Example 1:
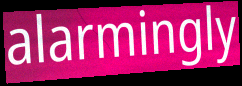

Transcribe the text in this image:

alarmingly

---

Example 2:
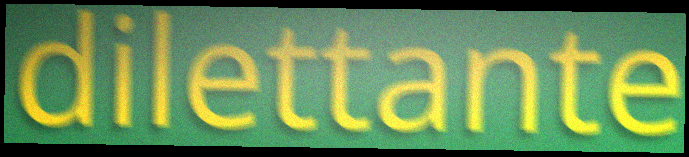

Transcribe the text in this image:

dilettante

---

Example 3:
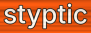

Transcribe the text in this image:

styptic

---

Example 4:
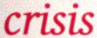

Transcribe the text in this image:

crisis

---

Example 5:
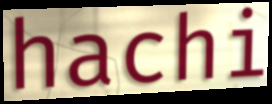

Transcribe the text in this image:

hachi